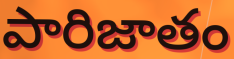
పారిజాతం